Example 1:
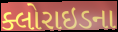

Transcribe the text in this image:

ક્લોરાઇડના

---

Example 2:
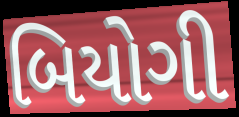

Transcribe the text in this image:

બિયોગી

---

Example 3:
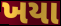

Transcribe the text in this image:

ખયા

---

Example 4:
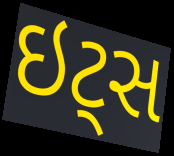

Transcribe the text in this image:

ઇટ્સ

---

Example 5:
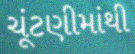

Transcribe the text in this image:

ચૂંટણીમાંથી